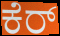
ಕೆರ್